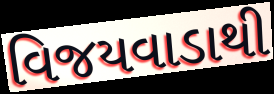
વિજયવાડાથી